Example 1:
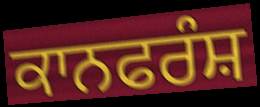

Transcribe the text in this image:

ਕਾਨਫਰੰਸ਼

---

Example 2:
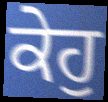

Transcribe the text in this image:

ਕੇਹੁ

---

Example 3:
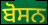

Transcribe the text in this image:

ਬੋਸਨ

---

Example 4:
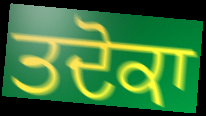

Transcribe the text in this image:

ਤਦੋਕਾ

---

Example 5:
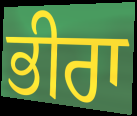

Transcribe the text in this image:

ਭੀਰਾ